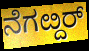
ನೆಗೞ್ದರ್